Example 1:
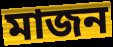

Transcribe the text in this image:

মাজন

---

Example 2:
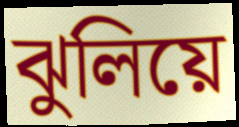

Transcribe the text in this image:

ঝুলিয়ে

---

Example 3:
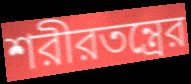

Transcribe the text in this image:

শরীরতন্ত্রের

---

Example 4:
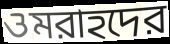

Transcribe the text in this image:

ওমরাহদের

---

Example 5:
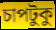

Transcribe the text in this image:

চাপটুকু